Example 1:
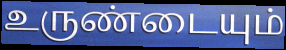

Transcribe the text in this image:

உருண்டையும்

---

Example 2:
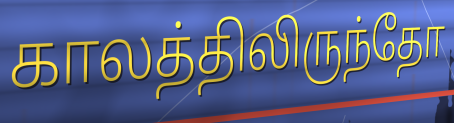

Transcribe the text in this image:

காலத்திலிருந்தோ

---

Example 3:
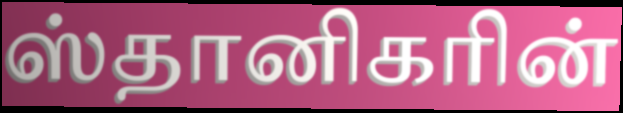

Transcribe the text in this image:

ஸ்தானிகரின்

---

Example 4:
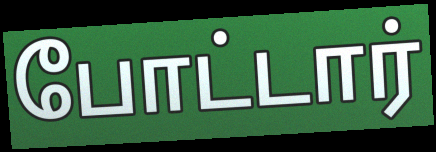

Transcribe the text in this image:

போட்டார்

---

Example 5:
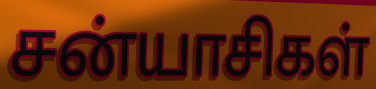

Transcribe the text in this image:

சன்யாசிகள்